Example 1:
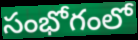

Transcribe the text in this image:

సంభోగంలో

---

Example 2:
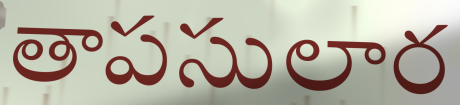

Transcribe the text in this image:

తాపసులార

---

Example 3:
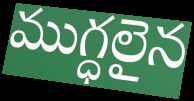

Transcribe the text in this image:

ముగ్ధలైన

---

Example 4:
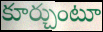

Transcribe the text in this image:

కూర్చుంటూ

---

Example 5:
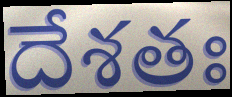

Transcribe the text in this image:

దేశతః